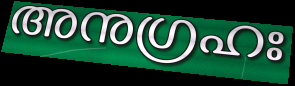
അനുഗ്രഹഃ